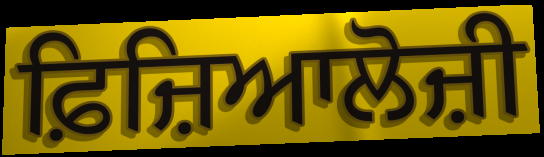
ਫ਼ਿਜ਼ਿਆਲੋਜ਼ੀ